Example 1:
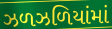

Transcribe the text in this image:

ઝળઝળિયાંમાં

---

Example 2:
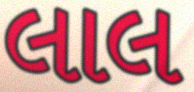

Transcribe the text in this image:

લાલ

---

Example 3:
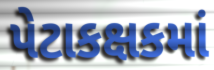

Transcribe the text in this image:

પેટાકક્ષકમાં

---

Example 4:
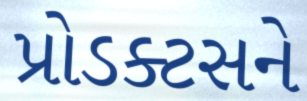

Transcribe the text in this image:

પ્રોડક્ટસને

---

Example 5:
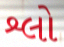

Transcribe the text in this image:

શ્લો